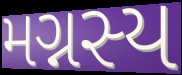
મગ્નસ્ય